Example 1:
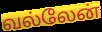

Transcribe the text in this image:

வல்லேன்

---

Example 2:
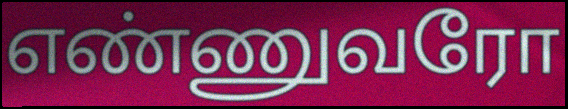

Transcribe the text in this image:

எண்ணுவரோ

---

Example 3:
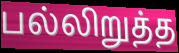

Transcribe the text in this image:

பல்லிறுத்த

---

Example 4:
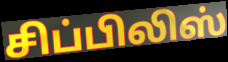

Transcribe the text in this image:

சிப்பிலிஸ்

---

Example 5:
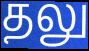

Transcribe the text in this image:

தலு